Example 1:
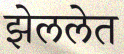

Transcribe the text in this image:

झेललेत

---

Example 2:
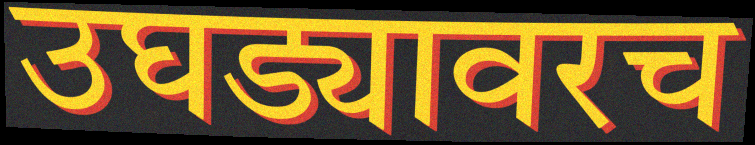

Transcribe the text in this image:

उघड्यावरच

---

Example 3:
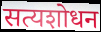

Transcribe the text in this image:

सत्यशोधन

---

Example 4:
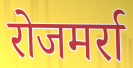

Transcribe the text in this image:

रोजमर्रा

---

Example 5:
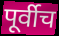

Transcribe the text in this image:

पूर्वीच